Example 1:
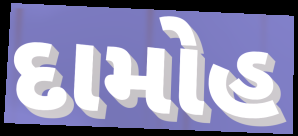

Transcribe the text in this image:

દામોહ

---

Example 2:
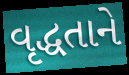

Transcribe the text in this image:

વૃદ્ધતાને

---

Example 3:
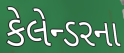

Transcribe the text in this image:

કેલેન્ડરના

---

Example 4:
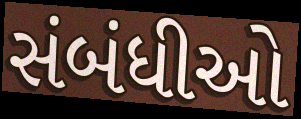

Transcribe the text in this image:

સંબંધીઓ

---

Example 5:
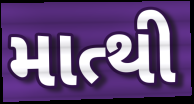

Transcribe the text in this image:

માત્થી